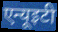
एन्यूइटी